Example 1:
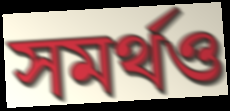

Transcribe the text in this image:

সমর্থও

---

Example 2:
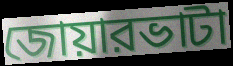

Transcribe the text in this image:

জোয়ারভাটা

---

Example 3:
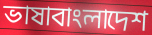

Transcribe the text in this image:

ভাষাবাংলাদেশ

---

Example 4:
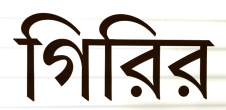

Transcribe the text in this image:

গিরির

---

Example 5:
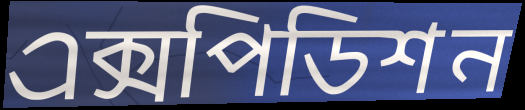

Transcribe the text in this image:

এক্সপিডিশন